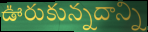
ఊరుకున్నదాన్ని